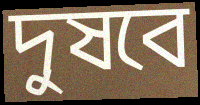
দুষবে